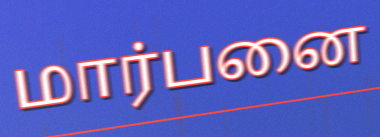
மார்பனை